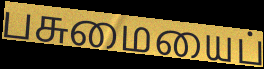
பசுமையைப்